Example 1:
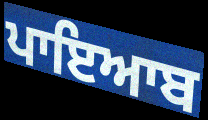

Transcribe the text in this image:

ਪਾਇਆਬ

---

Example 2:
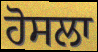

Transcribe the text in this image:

ਹੋਸਲਾ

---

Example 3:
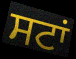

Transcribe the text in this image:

ਸਟਾਂ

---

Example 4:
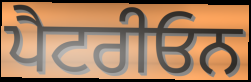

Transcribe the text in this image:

ਪੈਟਰੀਓਨ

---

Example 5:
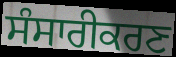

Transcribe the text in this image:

ਸੰਸਾਰੀਕਰਣ